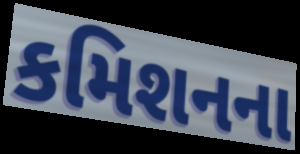
કમિશનના